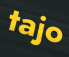
tajo